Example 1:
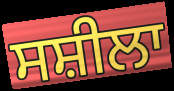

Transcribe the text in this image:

ਸਸ਼ੀਲਾ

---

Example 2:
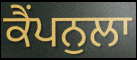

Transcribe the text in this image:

ਕੈਂਪਨੁਲਾ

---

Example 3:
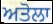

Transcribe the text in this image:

ਅਤੋਲਾ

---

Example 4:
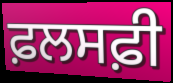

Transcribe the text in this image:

ਫ਼ਲਸਫ਼ੀ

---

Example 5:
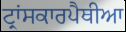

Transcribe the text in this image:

ਟ੍ਰਾਂਸਕਾਰਪੈਥੀਆ